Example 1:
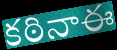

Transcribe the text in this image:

కఠినాఈ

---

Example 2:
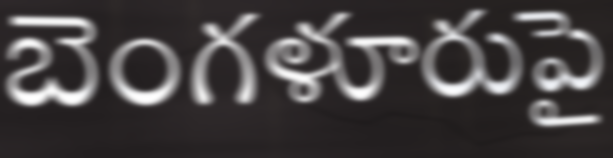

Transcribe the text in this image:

బెంగళూరుపై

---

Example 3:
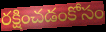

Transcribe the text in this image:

రక్షించడంకోసం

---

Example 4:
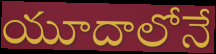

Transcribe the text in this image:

యూదాలోనే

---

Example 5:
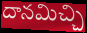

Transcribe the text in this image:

దానమిచ్చి